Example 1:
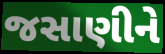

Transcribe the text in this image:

જસાણીને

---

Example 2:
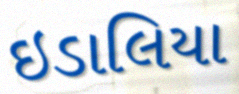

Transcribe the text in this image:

ઇડાલિયા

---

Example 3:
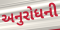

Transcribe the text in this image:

અનુરોધની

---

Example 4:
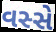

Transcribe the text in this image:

વસ્સે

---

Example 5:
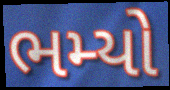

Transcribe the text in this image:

ભમ્યો